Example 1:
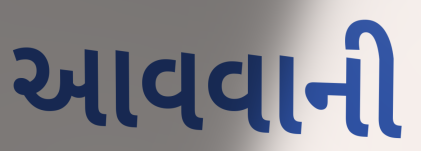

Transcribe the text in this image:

આવવાની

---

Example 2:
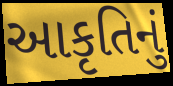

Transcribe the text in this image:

આકૃતિનું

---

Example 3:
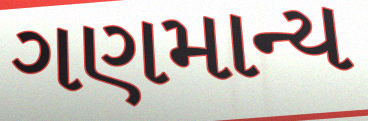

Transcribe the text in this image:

ગણમાન્ય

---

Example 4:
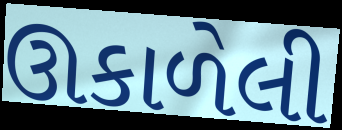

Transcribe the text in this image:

ઊકાળેલી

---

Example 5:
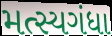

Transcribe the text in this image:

મત્સ્યગંધા